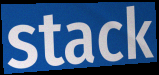
stack